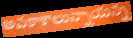
అవకాశాలున్నాయన్న